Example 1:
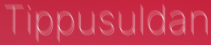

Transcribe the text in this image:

Tippusuldan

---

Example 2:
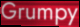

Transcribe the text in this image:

Grumpy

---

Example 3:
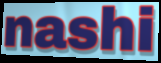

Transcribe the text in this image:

nashi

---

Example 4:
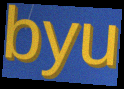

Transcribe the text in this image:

byu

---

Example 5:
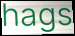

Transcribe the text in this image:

hags